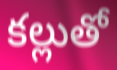
కల్లుతో